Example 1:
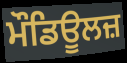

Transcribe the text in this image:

ਮੌਡਿਊਲਜ਼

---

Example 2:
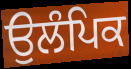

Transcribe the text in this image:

ਉਲੰਪਿਕ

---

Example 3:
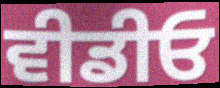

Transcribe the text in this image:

ਵੀਡੀਓ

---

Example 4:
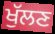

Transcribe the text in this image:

ਖੁੱਲਣ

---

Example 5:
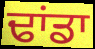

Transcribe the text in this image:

ਢਾਂਡਾ